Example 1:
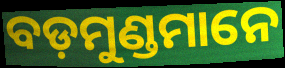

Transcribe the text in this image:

ବଡ଼ମୁଣ୍ଡମାନେ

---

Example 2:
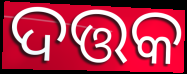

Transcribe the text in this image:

ଦତ୍ତକ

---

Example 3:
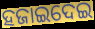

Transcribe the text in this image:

ହଜାଇଦେଇ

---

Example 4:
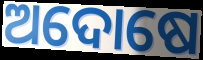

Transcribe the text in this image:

ଅଦୋଷେ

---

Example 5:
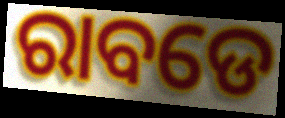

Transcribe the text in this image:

ରାବଡେ